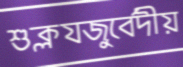
শুক্লযজুর্বেদীয়